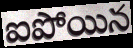
ఐపోయిన